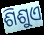
ଶିଶୁଏ